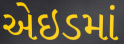
એઇડમાં